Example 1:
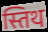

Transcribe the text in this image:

स्तिथ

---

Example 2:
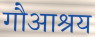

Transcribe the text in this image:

गौआश्रय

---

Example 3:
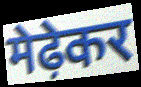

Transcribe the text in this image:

मेढ़ेकर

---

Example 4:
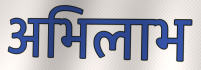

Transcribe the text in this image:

अभिलाभ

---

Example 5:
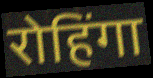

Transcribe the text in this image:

रोहिंगा